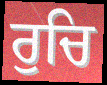
ਰੁਚਿ